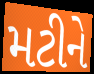
મટીને